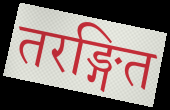
तरङ्गित